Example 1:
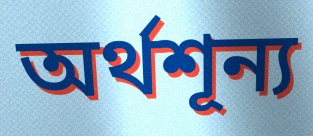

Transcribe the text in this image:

অর্থশূন্য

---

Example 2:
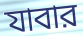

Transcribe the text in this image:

যাবার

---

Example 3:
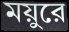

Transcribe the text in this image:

ময়ুরে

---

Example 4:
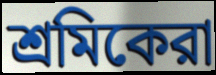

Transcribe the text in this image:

শ্রমিকেরা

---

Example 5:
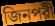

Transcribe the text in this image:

জিনপরী